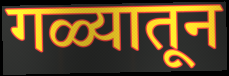
गळ्यातून